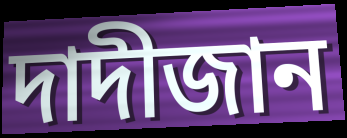
দাদীজান